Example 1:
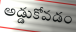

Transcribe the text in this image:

అడ్డుకోవడం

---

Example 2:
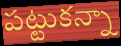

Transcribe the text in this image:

పట్టుకన్నా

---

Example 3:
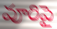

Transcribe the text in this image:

వూరిపై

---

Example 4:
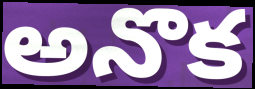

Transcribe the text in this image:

అనొక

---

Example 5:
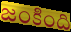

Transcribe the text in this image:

జంకింది